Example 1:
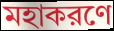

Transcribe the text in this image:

মহাকরণে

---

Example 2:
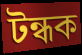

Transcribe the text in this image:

টন্ধক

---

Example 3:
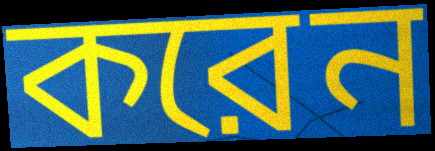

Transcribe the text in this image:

করেন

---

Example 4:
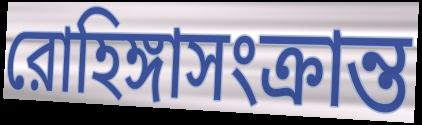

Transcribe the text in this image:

রোহিঙ্গাসংক্রান্ত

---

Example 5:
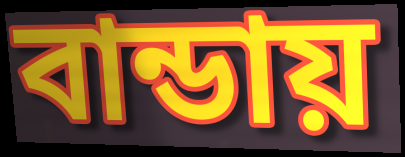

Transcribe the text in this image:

বান্ডায়